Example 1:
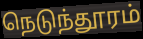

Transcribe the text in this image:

நெடுந்தூரம்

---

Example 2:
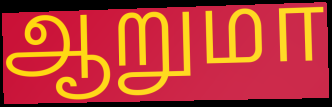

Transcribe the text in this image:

ஆறுமா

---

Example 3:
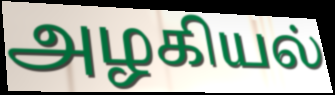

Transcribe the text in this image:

அழகியல்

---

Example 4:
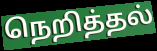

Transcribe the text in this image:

நெறித்தல்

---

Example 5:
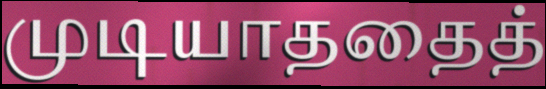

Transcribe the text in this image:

முடியாததைத்